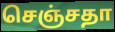
செஞ்சதா